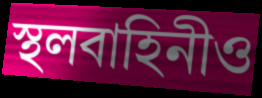
স্থলবাহিনীও